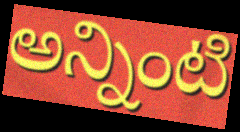
అన్నింటి